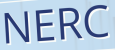
NERC